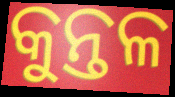
କୁନ୍ତଳ